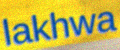
lakhwa